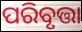
ପରିବୃତ୍ତା